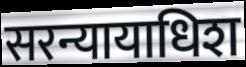
सरन्यायाधिश